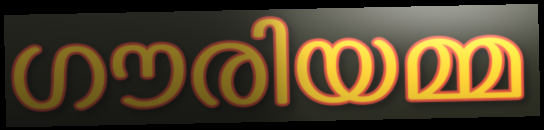
ഗൗരിയമ്മ